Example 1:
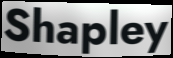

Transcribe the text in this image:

Shapley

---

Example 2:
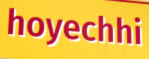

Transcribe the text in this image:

hoyechhi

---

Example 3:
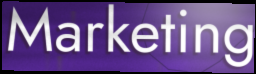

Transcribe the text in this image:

Marketing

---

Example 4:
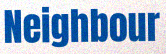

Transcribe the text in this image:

Neighbour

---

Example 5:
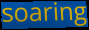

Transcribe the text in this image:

soaring